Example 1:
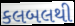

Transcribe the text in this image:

કલબલથી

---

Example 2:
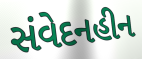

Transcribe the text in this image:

સંવેદનહીન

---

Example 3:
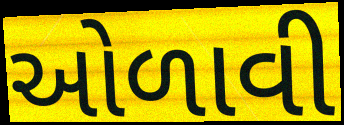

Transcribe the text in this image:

ઓળાવી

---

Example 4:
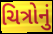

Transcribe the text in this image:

ચિત્રોનું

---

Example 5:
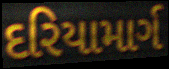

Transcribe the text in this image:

દરિયામાર્ગ